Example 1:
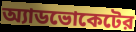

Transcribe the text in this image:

অ্যাডভোকেটের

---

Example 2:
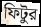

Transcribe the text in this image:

ফিটুর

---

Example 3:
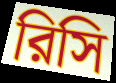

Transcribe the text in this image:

রিসি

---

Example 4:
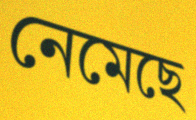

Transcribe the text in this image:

নেমেছে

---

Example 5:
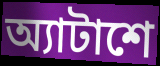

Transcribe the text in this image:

অ্যাটাশে